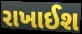
રાખાઈશ